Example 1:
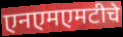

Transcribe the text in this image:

एनएमएमटीचे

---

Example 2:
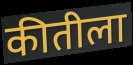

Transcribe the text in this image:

कीतीला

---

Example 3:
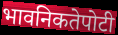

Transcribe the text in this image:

भावनिकतेपोटी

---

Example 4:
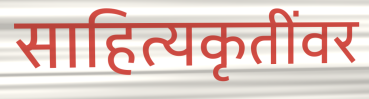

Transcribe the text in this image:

साहित्यकृतींवर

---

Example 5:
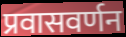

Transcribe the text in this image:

प्रवासवर्णन